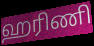
ஹரிணி